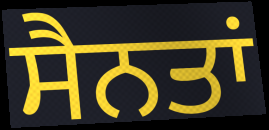
ਸੈਨਤਾਂ